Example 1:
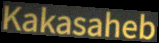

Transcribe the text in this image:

Kakasaheb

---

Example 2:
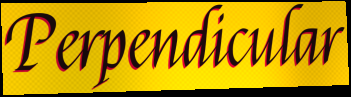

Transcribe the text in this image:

Perpendicular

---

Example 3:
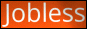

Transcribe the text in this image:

Jobless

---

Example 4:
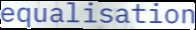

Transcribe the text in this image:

equalisation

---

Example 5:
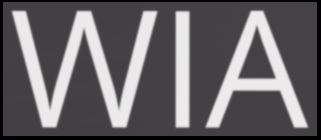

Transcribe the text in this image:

WIA